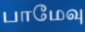
பாமேவு